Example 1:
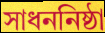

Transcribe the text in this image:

সাধননিষ্ঠা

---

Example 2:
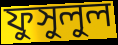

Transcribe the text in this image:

ফুসুলুল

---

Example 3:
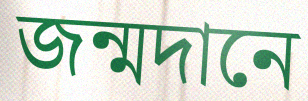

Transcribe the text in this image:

জন্মদানে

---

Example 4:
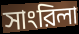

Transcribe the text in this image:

সাংরিলা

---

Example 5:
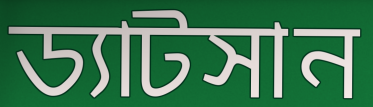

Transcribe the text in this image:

ড্যাটসান